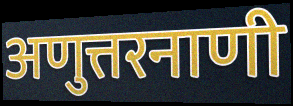
अणुत्तरनाणी